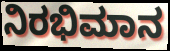
ನಿರಭಿಮಾನ